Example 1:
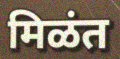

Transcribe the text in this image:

मिळंत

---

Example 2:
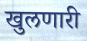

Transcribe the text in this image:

खुलणारी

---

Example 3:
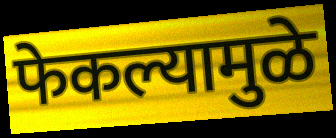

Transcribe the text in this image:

फेकल्यामुळे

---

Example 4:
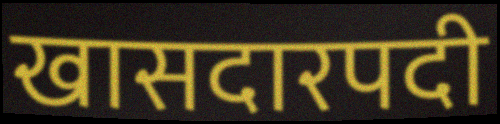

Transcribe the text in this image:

खासदारपदी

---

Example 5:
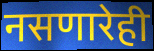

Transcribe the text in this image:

नसणारेही